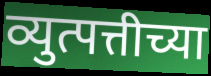
व्युत्पत्तीच्या